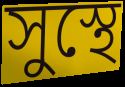
সুস্থে